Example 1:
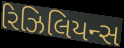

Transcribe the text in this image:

રિઝિલિયન્સ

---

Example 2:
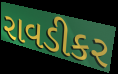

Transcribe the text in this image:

રાવડીકર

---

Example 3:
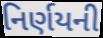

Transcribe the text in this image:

નિર્ણયની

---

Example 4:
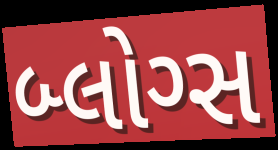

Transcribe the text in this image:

બ્લોગ્સ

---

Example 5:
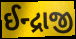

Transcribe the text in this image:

ઈન્દ્રાજી